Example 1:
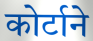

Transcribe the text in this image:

कोर्टाने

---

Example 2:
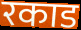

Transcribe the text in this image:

रकाड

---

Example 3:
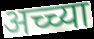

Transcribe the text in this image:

अच्च्या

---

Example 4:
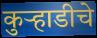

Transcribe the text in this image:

कुऱ्हाडीचे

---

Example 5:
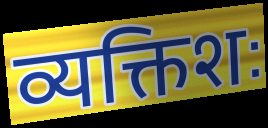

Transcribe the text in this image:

व्यक्तिशः